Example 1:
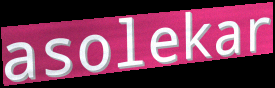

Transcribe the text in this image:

asolekar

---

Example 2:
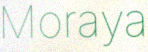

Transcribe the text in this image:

Moraya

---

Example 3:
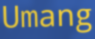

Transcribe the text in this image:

Umang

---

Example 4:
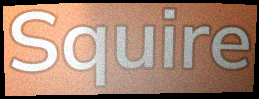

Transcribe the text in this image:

Squire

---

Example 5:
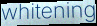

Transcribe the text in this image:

whitening